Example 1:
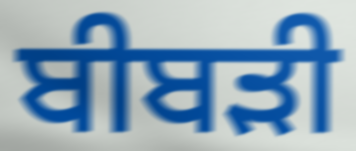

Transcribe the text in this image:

ਬੀਬੜੀ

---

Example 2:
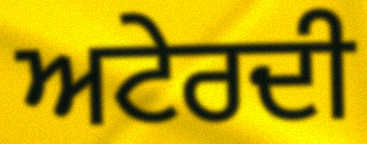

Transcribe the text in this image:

ਅਟੇਰਦੀ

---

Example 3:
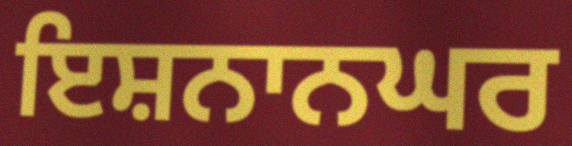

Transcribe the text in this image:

ਇਸ਼ਨਾਨਘਰ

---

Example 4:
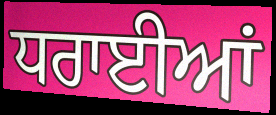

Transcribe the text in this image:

ਧਰਾਈਆਂ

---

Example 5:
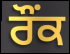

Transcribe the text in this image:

ਰੌਂਕ